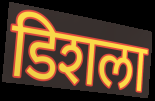
डिशला